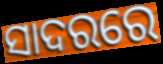
ସାଦରରେ